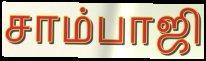
சாம்பாஜி